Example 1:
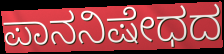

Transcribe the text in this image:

ಪಾನನಿಷೇಧದ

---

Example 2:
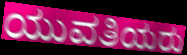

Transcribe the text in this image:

ಯುವತಿಯರು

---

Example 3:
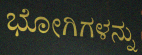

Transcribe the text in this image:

ಭೋಗಿಗಳನ್ನು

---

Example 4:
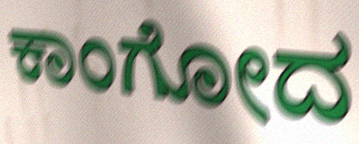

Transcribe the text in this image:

ಕಾಂಗೋದ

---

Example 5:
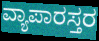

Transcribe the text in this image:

ವ್ಯಾಪಾರಸ್ತರ